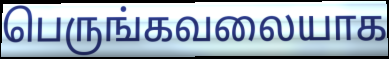
பெருங்கவலையாக